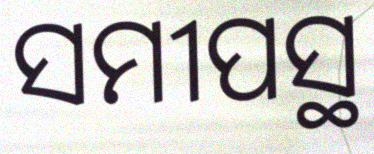
ସମୀପସ୍ଥ